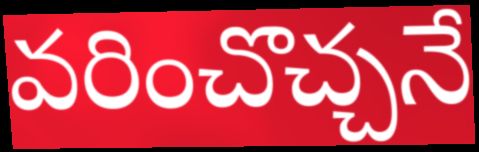
వరించొచ్చనే